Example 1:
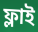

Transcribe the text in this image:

ফ্লাই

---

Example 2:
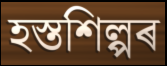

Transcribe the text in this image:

হস্তশিল্পৰ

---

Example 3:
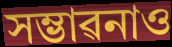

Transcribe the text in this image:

সম্ভাৱনাও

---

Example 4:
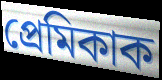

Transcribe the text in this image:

প্ৰেমিকাক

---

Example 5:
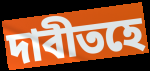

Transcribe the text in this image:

দাবীতহে